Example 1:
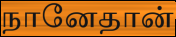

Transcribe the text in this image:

நானேதான்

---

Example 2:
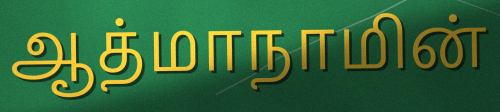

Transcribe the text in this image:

ஆத்மாநாமின்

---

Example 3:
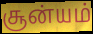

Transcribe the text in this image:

சூன்யம்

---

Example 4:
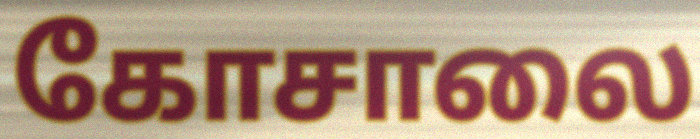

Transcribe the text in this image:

கோசாலை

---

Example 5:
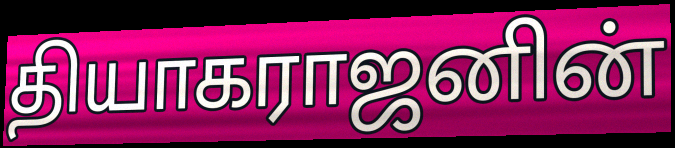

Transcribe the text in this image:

தியாகராஜனின்